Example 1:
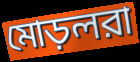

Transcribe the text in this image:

মোড়লরা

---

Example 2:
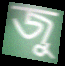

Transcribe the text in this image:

জু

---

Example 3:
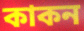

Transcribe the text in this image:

কাকন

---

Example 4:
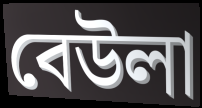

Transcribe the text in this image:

বেউলা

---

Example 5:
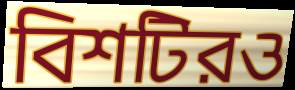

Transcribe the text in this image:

বিশটিরও